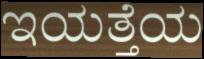
ಇಯತ್ತೆಯ